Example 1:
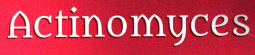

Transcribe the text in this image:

Actinomyces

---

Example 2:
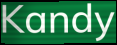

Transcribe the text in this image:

Kandy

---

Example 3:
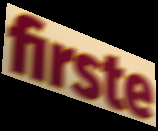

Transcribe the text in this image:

firste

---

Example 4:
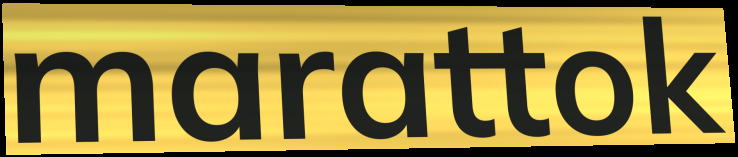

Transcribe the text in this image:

marattok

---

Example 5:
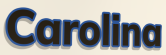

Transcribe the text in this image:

Carolina